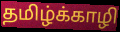
தமிழ்க்காழி